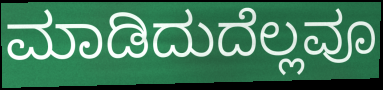
ಮಾಡಿದುದೆಲ್ಲವೂ